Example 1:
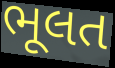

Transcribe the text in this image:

ભૂલત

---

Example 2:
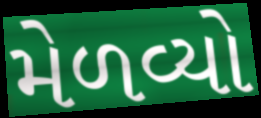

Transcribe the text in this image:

મેળવ્યો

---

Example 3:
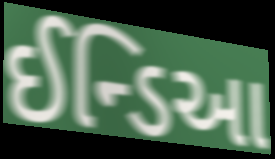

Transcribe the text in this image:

ઈન્ડિઆ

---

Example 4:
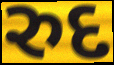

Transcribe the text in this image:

રુદ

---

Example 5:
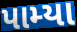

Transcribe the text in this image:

પામ્યા